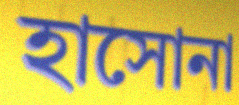
হাসোনা